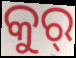
କୁର୍